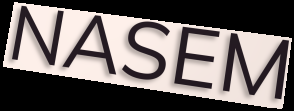
NASEM